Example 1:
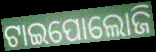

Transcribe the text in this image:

ଟାଇପୋଲୋଜି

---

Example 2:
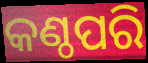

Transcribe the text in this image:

କଣ୍ଠପରି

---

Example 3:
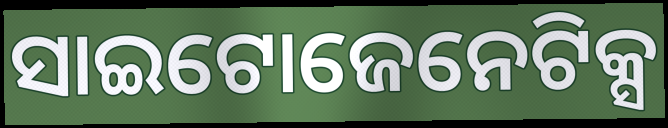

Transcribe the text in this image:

ସାଇଟୋଜେନେଟିକ୍ସ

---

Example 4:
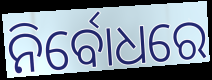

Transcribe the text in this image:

ନିର୍ବୋଧରେ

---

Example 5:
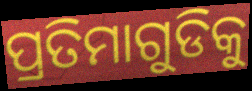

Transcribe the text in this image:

ପ୍ରତିମାଗୁଡିକୁ